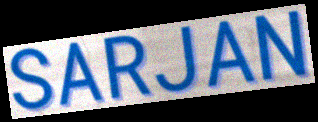
SARJAN